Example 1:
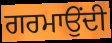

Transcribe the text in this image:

ਗਰਮਾਉਂਦੀ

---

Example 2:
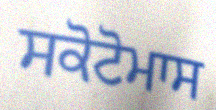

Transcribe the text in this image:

ਸਕੋਟੋਮਾਸ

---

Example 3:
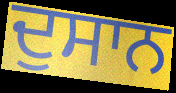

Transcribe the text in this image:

ਦੁਸਾਨ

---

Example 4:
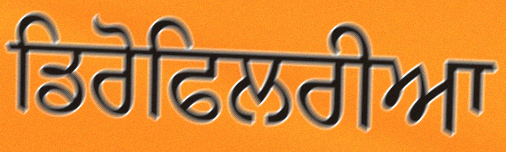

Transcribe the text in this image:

ਡਿਰੋਫਿਲਰੀਆ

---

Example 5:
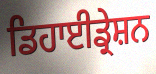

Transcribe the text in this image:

ਡਿਹਾਈਡ੍ਰੇਸ਼ਨ